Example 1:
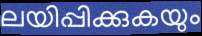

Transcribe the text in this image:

ലയിപ്പിക്കുകയും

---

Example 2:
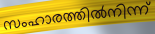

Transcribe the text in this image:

സംഹാരത്തിൽനിന്ന്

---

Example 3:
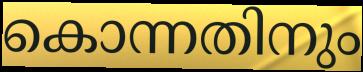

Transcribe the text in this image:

കൊന്നതിനും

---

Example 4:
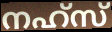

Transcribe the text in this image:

നഹ്സ്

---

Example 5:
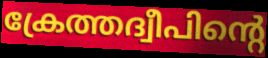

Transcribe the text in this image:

ക്രേത്തദ്വീപിന്റെ